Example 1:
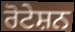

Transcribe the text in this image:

ਰੋਟੇਸ਼ਨ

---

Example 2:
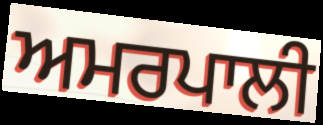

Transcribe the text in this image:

ਅਮਰਪਾਲੀ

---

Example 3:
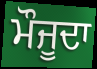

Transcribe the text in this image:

ਮੌਜੂਦਾ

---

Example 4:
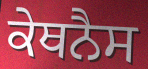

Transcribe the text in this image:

ਕੇਥਨੈਸ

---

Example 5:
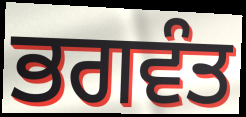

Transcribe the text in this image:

ਭਗਵੰਤ